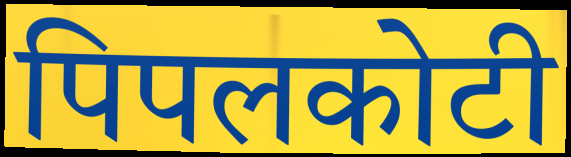
पिपलकोटी